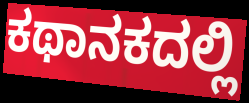
ಕಥಾನಕದಲ್ಲಿ